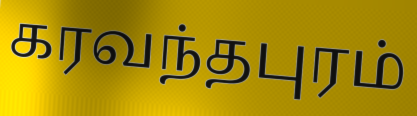
கரவந்தபுரம்